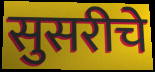
सुसरीचे